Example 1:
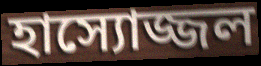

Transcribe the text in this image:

হাস্যোজ্জল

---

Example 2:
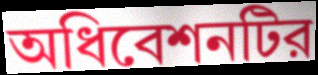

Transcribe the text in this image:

অধিবেশনটির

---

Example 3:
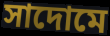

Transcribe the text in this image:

সাদোমে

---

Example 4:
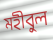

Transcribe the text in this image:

মহীবুল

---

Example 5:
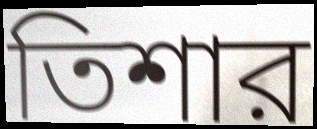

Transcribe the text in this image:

তিশার